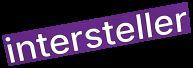
intersteller